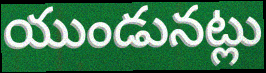
యుండునట్లు